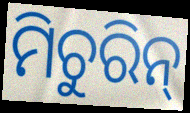
ମିଚୁରିନ୍